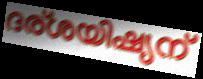
ദര്ശയിഷ്യന്